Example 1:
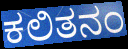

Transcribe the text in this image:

ಕಲಿತನಂ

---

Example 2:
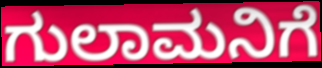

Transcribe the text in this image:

ಗುಲಾಮನಿಗೆ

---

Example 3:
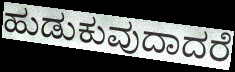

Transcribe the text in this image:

ಹುಡುಕುವುದಾದರೆ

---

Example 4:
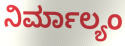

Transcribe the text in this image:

ನಿರ್ಮಾಲ್ಯಂ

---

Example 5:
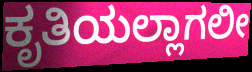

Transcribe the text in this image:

ಕೃತಿಯಲ್ಲಾಗಲೀ